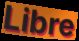
Libre